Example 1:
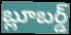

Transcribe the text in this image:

బ్లూబర్డ్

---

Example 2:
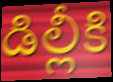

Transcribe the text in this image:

డిల్లీకి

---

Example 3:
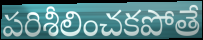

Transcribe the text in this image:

పరిశీలించకపోతే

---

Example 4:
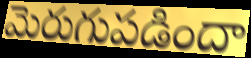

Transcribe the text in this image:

మెరుగుపడిందా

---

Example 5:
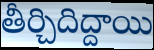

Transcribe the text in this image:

తీర్చిదిద్దాయి